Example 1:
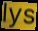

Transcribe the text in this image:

lys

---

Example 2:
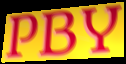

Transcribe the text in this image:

PBY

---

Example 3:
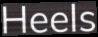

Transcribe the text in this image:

Heels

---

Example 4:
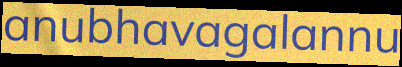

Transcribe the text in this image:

anubhavagalannu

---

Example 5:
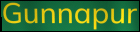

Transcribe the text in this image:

Gunnapur